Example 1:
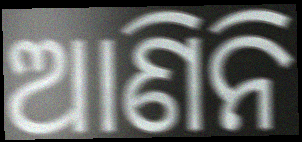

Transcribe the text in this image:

ଆଣିନି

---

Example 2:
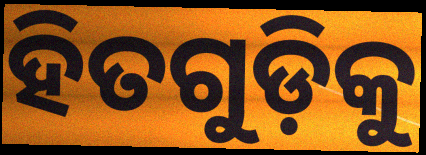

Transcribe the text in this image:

ହିତଗୁଡ଼ିକୁ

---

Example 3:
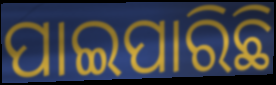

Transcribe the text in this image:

ପାଇପାରିଛି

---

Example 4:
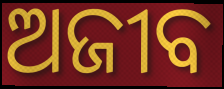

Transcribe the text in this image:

ଅଜୀବ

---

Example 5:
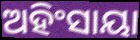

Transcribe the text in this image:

ଅହିଂସାୟା